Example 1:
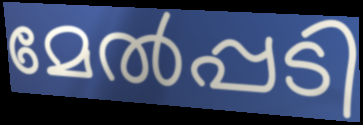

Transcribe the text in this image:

മേൽപ്പടി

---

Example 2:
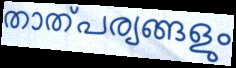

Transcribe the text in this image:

താത്പര്യങ്ങളും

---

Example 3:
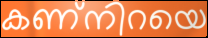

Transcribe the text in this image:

കണ്നിറയെ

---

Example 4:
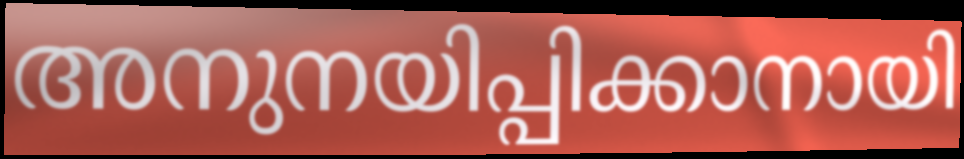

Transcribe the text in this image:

അനുനയിപ്പിക്കാനായി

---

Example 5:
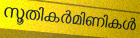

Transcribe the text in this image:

സൂതികർമിണികൾ